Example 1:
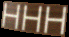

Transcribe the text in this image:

HHH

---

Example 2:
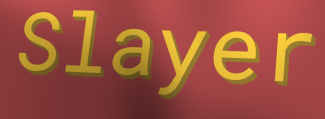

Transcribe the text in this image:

Slayer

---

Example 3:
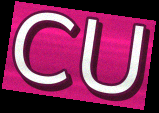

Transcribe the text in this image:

CU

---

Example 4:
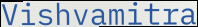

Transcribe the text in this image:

Vishvamitra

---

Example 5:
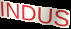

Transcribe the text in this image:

INDUS